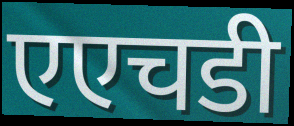
एएचडी